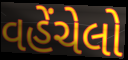
વહેંચેલો